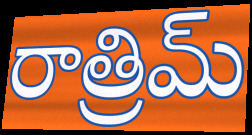
రాత్రిమ్